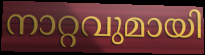
നാറ്റവുമായി